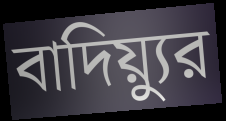
বাদিয়্যুর